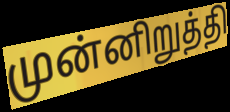
முன்னிறுத்தி